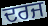
ਦਰਜ